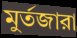
মুর্তজারা